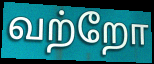
வற்றோ